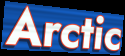
Arctic